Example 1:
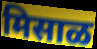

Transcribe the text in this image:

मिसाळ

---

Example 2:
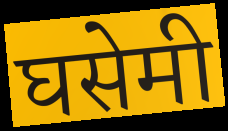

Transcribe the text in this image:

घसेमी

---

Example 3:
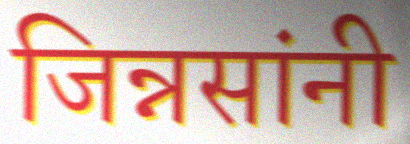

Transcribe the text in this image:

जिन्नसांनी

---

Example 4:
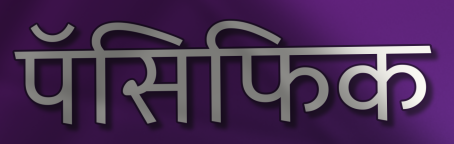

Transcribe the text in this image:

पॅसिफिक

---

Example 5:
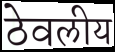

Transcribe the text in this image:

ठेवलीय